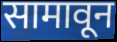
सामावून